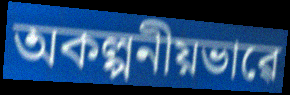
অকল্পনীয়ভাৱে